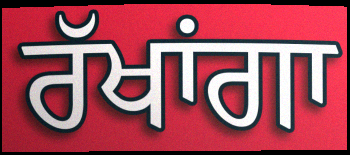
ਰੱਖਾਂਗਾ